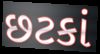
છટકાં